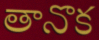
తానొక